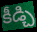
కీడ్చి